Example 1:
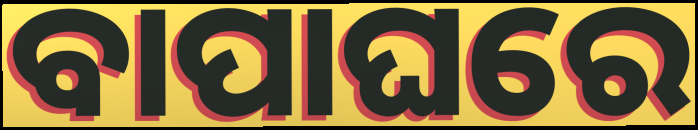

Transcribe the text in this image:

ବାପାଘରେ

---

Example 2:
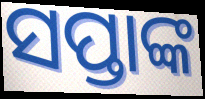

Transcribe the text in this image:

ସପ୍ତାଙ୍କ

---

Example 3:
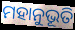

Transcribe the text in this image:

ମହାନୁଭୂତି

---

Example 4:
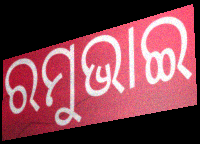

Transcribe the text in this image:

ରମୁଭାଇ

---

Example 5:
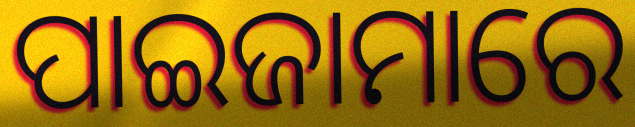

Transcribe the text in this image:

ପାଇଜାମାରେ